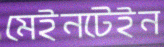
মেইনটেইন